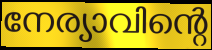
നേര്യാവിന്റെ